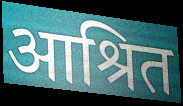
आश्रित